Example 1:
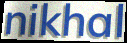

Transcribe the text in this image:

nikhal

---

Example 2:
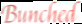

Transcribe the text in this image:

Bunched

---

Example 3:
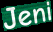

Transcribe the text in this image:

Jeni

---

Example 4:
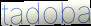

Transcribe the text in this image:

tadoba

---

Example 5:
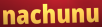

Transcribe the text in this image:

nachunu